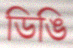
ডিঙি